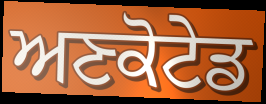
ਅਣਕੋਟੇਡ